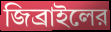
জিব্রাইলের